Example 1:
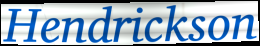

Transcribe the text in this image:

Hendrickson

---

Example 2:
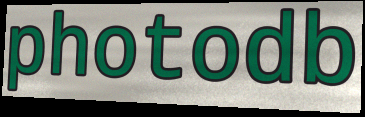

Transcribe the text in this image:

photodb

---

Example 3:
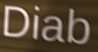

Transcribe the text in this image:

Diab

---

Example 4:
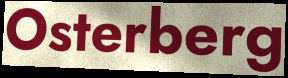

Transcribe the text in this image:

Osterberg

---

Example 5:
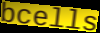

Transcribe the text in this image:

bcells